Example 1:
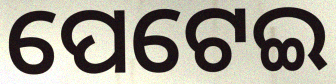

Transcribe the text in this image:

ପେଟେଇ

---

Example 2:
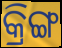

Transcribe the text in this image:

କ୍ରିଙ୍ଗ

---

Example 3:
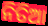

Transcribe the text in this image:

ନିତିଆ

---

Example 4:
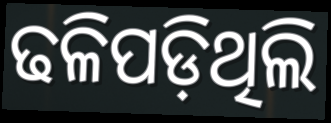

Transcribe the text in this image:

ଢଳିପଡ଼ିଥିଲି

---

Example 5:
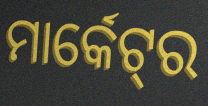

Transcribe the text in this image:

ମାର୍କେଟ୍‌ର